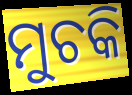
ମୁଚକି